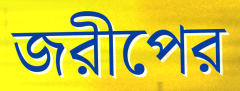
জরীপের